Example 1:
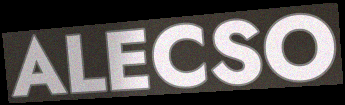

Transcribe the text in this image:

ALECSO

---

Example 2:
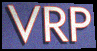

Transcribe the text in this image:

VRP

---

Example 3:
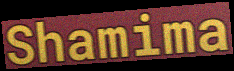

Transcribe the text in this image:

Shamima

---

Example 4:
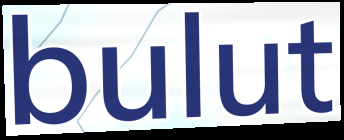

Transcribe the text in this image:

bulut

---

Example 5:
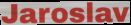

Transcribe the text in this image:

Jaroslav